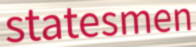
statesmen